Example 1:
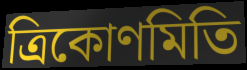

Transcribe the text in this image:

ত্ৰিকোণমিতি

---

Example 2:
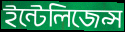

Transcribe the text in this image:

ইন্টেলিজেন্স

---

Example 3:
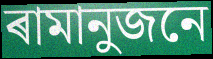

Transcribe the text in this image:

ৰামানুজনে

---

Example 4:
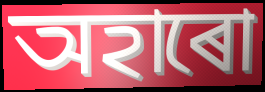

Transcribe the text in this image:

অহাৰো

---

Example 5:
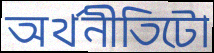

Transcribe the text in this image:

অৰ্থনীতিটো